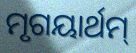
ମୃଗୟାର୍ଥମ୍